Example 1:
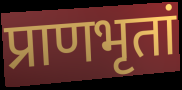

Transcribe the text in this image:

प्राणभृतां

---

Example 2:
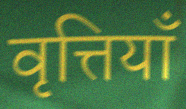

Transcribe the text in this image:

वृत्तियाँ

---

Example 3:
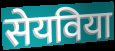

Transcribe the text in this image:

सेयविया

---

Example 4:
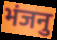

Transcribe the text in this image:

भंजनु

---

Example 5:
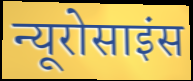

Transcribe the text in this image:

न्यूरोसाइंस